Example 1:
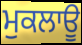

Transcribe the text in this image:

ਮੁਕਲਾਊ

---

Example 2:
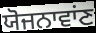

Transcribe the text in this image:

ਯੋਜਨਾਵਾਂਣ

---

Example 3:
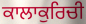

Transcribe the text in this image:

ਕਾਲਾਕੁਰਿਚੀ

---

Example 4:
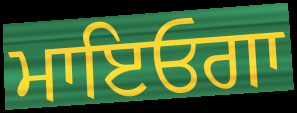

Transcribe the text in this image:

ਮਾਇਓਗਾ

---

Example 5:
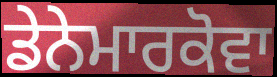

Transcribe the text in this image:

ਡੇਨੇਮਾਰਕੋਵਾ